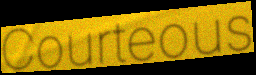
Courteous